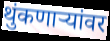
थुंकणाऱ्यांवर